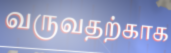
வருவதற்காக